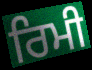
ਰਿਮੀ